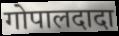
गोपालदादा